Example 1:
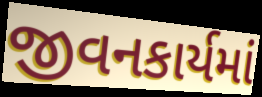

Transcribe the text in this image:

જીવનકાર્યમાં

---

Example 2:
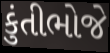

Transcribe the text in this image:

કુંતીભોજે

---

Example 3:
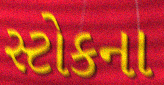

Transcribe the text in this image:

સ્ટોકના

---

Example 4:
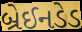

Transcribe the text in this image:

બ્રેઈનડેડ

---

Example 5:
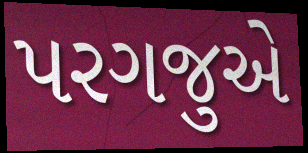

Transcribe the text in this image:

પરગજુએ